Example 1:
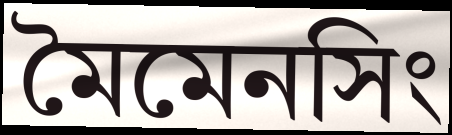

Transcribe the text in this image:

মৈমেনসিং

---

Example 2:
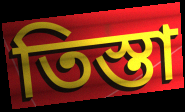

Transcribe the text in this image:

তিস্তা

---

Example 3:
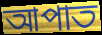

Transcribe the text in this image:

আপাত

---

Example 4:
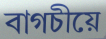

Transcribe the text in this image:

বাগচীয়ে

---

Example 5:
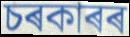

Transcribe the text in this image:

চৰকাৰৰ